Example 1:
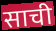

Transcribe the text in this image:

साची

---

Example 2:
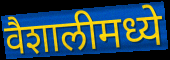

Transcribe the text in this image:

वैशालीमध्ये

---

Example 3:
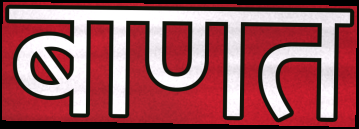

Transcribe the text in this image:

बाणत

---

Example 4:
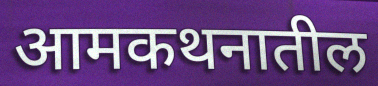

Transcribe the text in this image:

आमकथनातील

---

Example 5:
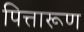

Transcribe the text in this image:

पित्तारूण